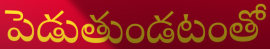
పెడుతుండటంతో